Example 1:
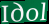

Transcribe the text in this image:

Idol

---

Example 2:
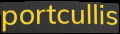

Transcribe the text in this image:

portcullis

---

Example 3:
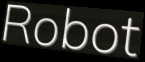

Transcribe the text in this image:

Robot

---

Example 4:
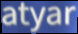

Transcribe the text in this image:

atyar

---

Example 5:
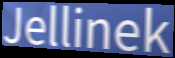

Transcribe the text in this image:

Jellinek